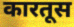
कारतूस